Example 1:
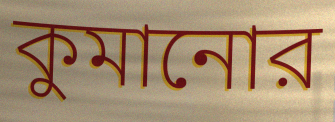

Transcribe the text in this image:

কুমানোর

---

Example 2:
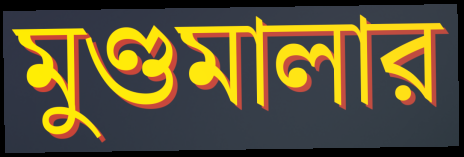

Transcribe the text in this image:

মুণ্ডমালার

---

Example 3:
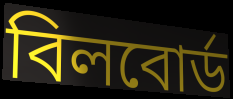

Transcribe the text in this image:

বিলবোর্ড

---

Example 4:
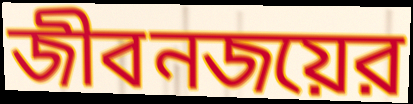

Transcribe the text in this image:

জীবনজয়ের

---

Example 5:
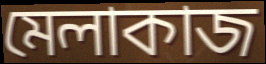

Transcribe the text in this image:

মেলাকাজ